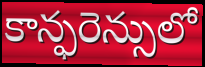
కాన్ఫరెన్సులో